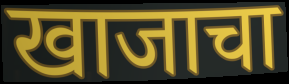
खाजाचा